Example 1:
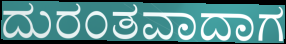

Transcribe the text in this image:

ದುರಂತವಾದಾಗ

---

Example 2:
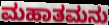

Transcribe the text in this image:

ಮಹಾತಮನು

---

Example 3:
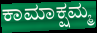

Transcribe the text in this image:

ಕಾಮಾಕ್ಷಮ್ಮ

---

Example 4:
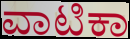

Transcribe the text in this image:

ವಾಟಿಕಾ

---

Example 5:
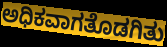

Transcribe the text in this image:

ಅಧಿಕವಾಗತೊಡಗಿತು